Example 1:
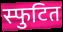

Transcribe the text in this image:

स्फुटित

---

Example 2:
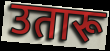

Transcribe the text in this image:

उतारू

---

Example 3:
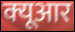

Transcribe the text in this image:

क्‍यूआर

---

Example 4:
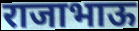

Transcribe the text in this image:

राजाभाऊ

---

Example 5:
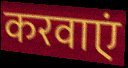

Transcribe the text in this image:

करवाएं